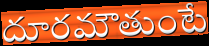
దూరమౌతుంటే